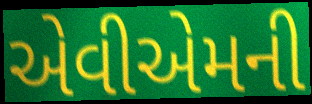
એવીએમની